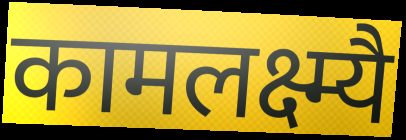
कामलक्ष्म्यै